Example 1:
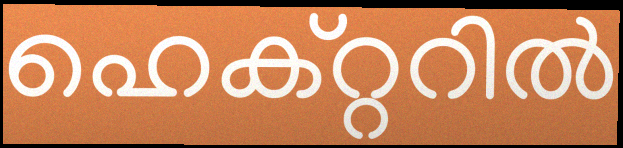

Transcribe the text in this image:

ഹെക്റ്ററിൽ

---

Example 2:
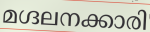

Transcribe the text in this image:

മഗ്ദലനക്കാരി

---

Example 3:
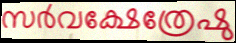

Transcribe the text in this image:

സർവക്ഷേത്രേഷു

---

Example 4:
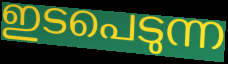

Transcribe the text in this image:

ഇടപെടുന്ന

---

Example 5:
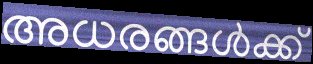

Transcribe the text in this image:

അധരങ്ങൾക്ക്